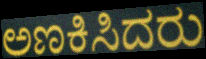
ಅಣಕಿಸಿದರು